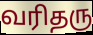
வரிதரு